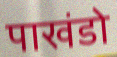
पाखंडो